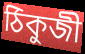
ঠিকুজী